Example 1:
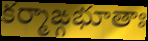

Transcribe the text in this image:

కర్మాఙ్గభూతాః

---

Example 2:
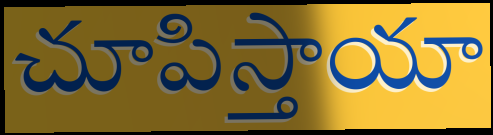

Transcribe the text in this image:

చూపిస్తాయా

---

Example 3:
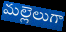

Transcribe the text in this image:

మల్లెలుగా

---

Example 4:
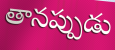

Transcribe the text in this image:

తానప్పుడు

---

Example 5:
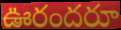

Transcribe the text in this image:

ఊరందరూ